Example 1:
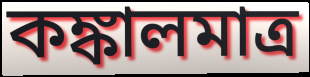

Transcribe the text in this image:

কঙ্কালমাত্র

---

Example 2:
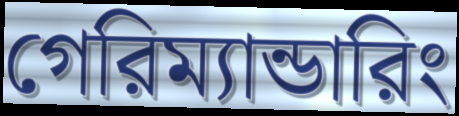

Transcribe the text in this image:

গেরিম্যান্ডারিং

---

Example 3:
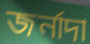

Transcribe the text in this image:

জর্নাদা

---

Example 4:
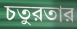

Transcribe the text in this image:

চতুরতার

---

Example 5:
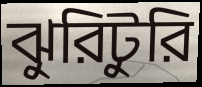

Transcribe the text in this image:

ঝুরিটুরি